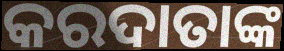
କରଦାତାଙ୍କ